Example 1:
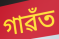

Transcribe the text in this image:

গাৱঁত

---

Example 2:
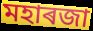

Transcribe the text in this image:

মহাৰজা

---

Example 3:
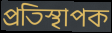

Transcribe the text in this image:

প্ৰতিস্থাপক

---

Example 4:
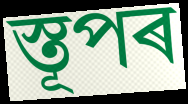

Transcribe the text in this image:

স্তূপৰ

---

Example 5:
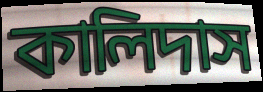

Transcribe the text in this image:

কালিদাস